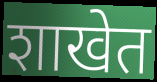
शाखेत